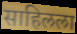
साहिलला